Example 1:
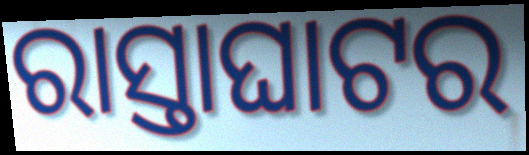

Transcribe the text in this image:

ରାସ୍ତାଘାଟର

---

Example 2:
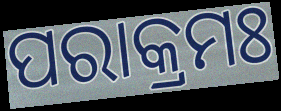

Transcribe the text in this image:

ପରାକ୍ରମଃ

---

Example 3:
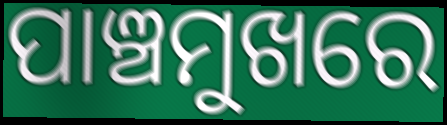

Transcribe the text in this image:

ପାଞ୍ଚମୁଖରେ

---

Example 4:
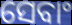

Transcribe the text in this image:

ସେବାଂ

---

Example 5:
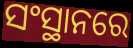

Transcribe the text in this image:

ସଂସ୍ଥାନରେ